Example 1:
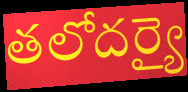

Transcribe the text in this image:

తలోదర్యై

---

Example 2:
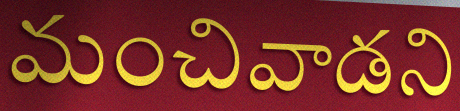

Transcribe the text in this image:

మంచివాడని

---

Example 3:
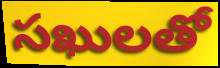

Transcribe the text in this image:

సఖులతో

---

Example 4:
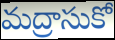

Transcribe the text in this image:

మద్రాసుకో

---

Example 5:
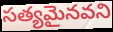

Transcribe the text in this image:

సత్యమైనవని